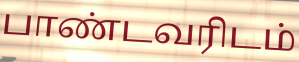
பாண்டவரிடம்